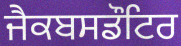
ਜੈਕਬਸਡੌਟਿਰ